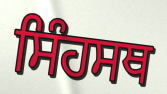
ਸਿੰਹਸਥ